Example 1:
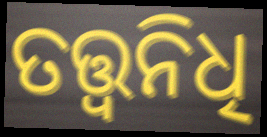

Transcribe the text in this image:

ତତ୍ତ୍ଵନିଧି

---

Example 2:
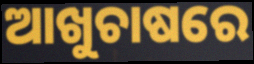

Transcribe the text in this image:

ଆଖୁଚାଷରେ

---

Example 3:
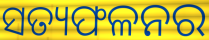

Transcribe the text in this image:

ସତ୍ୟଫଳନର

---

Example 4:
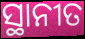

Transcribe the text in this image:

ସ୍ଥାନୀତ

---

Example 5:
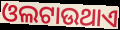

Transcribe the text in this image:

ଓଲଟାଉଥାଏ